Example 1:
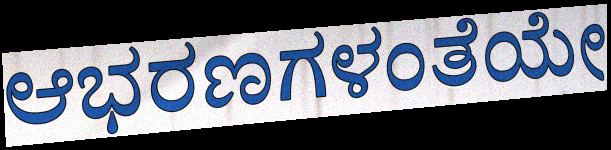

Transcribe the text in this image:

ಆಭರಣಗಳಂತೆಯೇ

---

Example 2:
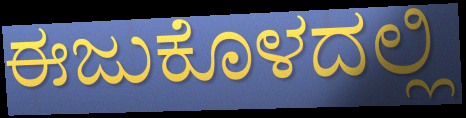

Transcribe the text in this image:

ಈಜುಕೊಳದಲ್ಲಿ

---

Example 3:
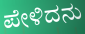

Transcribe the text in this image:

ಪೇಳಿದನು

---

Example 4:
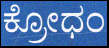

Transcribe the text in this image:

ಕ್ರೋಧಂ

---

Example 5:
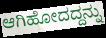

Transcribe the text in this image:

ಆಗಿಹೋದದ್ದನ್ನು